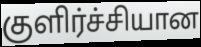
குளிர்ச்சியான